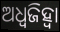
ଅଧ୍ୱଜିହ୍ବା